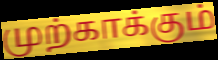
முற்காக்கும்